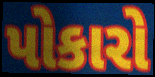
પોકારો